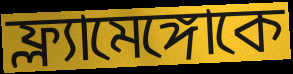
ফ্ল্যামেঙ্গোকে